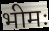
भीमः